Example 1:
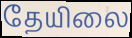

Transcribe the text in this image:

தேயிலை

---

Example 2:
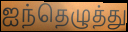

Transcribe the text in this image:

ஐந்தெழுத்து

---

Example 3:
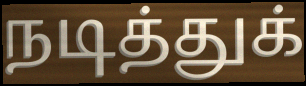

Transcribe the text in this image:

நடித்துக்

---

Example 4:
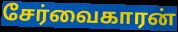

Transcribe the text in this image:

சேர்வைகாரன்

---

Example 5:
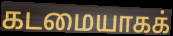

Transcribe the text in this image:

கடமையாகக்